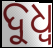
ଦୁଧ୍ଵ